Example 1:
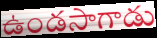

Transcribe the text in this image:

ఉండసాగాడు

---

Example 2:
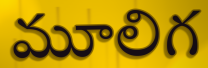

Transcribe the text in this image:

మూలిగ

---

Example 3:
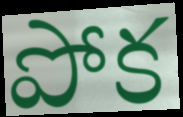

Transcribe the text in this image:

పోక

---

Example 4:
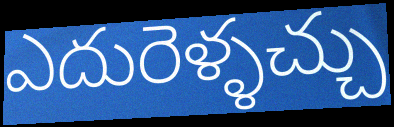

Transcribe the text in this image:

ఎదురెళ్ళచ్చు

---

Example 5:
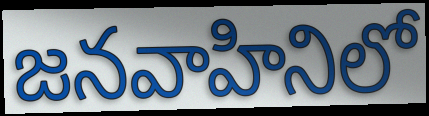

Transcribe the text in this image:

జనవాహినిలో